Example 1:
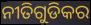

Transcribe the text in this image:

ନୀତିଗୁଡିକର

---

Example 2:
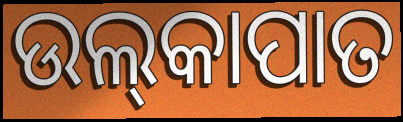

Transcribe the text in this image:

ଉଲ୍‍କାପାତ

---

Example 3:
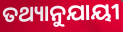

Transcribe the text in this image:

ତଥ୍ୟାନୁଯାୟୀ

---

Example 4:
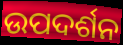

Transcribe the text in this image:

ଉପଦର୍ଶନ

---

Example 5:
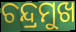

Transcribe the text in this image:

ଚନ୍ଦ୍ରମୁଖ